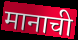
मानाची